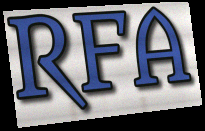
RFA